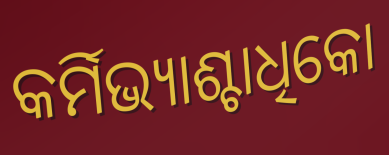
କର୍ମିଭ୍ୟାଶ୍ଚାଧିକୋ